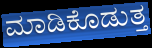
ಮಾಡಿಕೊಡುತ್ತ